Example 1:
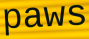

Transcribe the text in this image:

paws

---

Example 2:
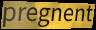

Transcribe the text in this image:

pregnent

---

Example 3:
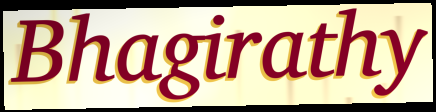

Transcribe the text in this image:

Bhagirathy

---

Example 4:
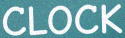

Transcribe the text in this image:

CLOCK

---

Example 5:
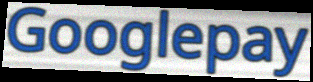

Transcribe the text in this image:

Googlepay